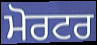
ਮੋਰਟਰ